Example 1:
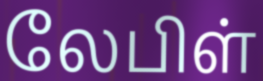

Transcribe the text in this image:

லேபிள்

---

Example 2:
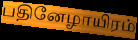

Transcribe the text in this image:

பதினேழாயிரம்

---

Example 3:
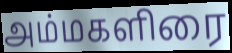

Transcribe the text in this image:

அம்மகளிரை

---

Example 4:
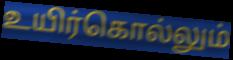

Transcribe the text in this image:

உயிர்கொல்லும்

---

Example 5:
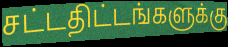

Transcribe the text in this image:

சட்டதிட்டங்களுக்கு